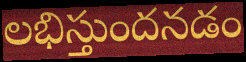
లభిస్తుందనడం